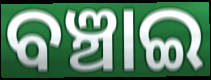
ବଞ୍ଚାଇ